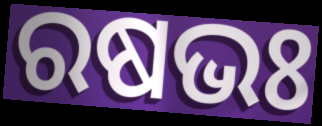
ରଷଭଃ